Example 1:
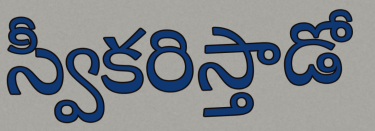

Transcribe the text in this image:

స్వీకరిస్తాడో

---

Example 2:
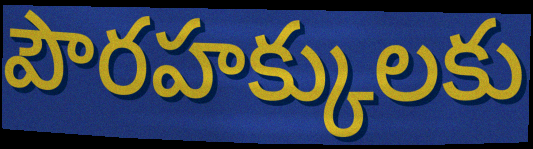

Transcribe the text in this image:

పౌరహక్కులకు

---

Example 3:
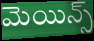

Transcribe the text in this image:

మెయిన్స్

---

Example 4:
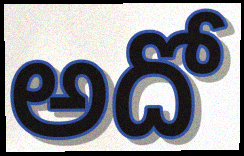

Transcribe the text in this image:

అదో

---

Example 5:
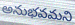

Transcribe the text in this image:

అనుభవమని